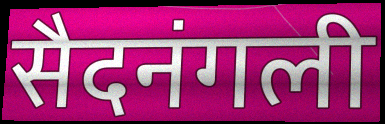
सैदनंगली